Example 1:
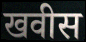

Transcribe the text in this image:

खवीस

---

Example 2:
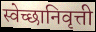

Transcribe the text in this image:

स्वेच्छानिवृत्ती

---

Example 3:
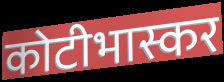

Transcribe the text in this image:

कोटीभास्कर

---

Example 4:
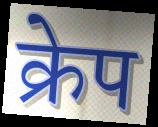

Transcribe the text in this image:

क्रेप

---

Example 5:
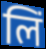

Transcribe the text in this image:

लिं